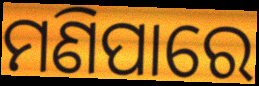
ମଣିପାରେ